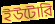
ইউটোরি